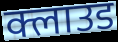
क्लाउड